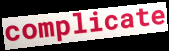
complicate